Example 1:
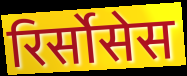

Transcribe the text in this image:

रिर्सोसेस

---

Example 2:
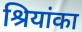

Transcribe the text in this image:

श्रियांका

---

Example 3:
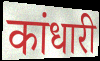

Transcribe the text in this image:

कांधारी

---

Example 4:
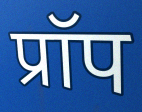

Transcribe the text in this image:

प्रॉप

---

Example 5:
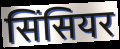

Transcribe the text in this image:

सिंसियर